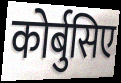
कोर्बुसिए